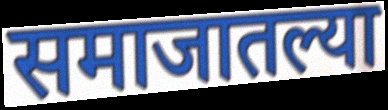
समाजातल्‍या